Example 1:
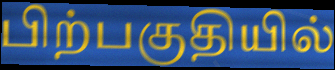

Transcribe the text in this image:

பிற்பகுதியில்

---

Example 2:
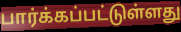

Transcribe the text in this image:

பார்க்கப்பட்டுள்ளது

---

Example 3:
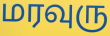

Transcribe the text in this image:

மரவுரு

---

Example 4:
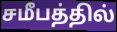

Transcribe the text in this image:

சமீபத்தில்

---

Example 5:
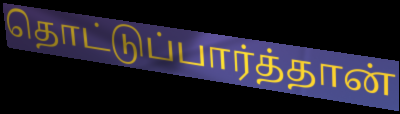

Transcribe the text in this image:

தொட்டுப்பார்த்தான்